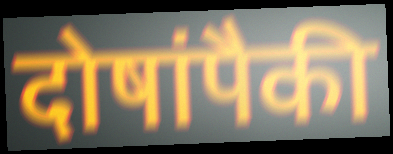
दोषांपैकी